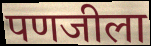
पणजीला